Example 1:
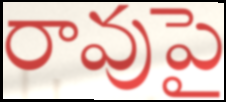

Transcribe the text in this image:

రావుపై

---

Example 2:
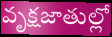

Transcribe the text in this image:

వృక్షజాతుల్లో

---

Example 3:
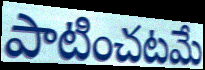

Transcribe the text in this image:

పాటించటమే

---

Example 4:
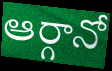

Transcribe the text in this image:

ఆర్గానో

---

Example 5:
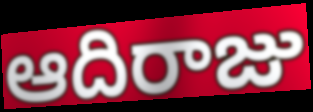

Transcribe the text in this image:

ఆదిరాజు